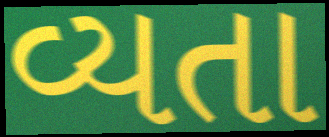
વ્યતા